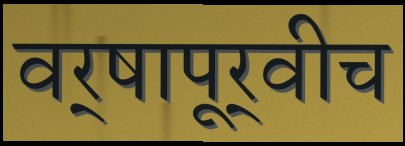
वर्षापूर्वीच